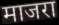
माजरा